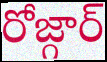
రోజ్గార్